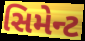
સિમેન્ટ